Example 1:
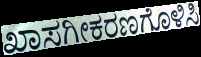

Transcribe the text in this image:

ಖಾಸಗೀಕರಣಗೊಳಿಸಿ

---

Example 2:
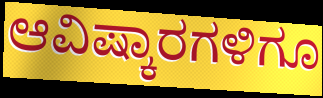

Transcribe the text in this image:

ಆವಿಷ್ಕಾರಗಳಿಗೂ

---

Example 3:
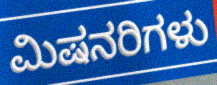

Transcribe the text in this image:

ಮಿಷನರಿಗಳು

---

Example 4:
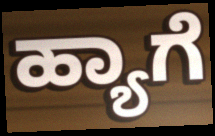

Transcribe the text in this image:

ಹ್ಯಾಗೆ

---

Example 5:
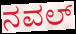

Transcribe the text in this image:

ನವಲ್